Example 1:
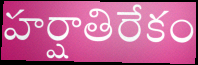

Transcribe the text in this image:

హర్షాతిరేకం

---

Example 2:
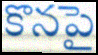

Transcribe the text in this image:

కొనపై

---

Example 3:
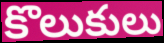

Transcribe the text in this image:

కొలుకులు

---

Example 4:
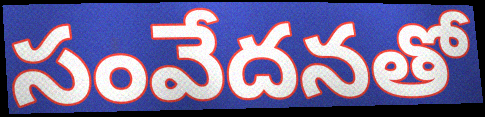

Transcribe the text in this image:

సంవేదనతో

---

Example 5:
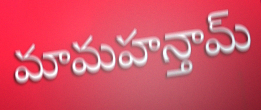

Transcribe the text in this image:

మామహన్తామ్